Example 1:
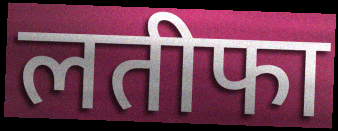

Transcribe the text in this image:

लतीफा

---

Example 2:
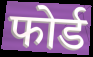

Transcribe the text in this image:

फोर्ड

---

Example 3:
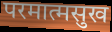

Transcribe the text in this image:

परमात्मसुख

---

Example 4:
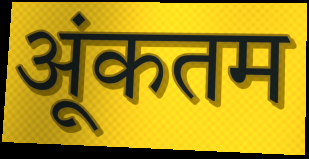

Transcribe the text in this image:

अूंकतम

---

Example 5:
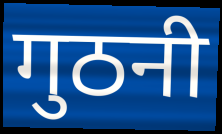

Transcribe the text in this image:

गुठनी